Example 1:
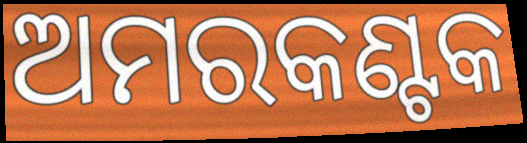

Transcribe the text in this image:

ଅମରକଣ୍ଟକ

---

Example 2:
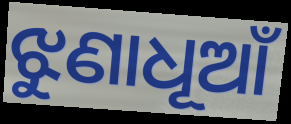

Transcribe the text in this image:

ଝୁଣାଧୂଆଁ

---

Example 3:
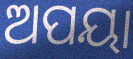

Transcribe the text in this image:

ଅପୟା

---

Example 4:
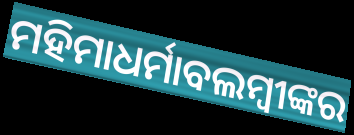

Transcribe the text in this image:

ମହିମାଧର୍ମାବଲମ୍ବୀଙ୍କର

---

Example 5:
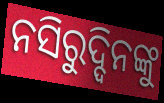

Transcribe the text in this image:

ନସିରୁଦ୍ଦିନଙ୍କୁ